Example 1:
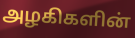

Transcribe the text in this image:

அழகிகளின்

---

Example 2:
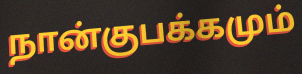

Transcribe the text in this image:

நான்குபக்கமும்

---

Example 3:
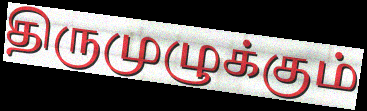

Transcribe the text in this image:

திருமுழுக்கும்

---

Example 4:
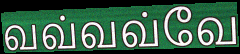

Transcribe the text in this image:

வவ்வவ்வே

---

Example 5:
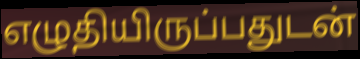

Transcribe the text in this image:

எழுதியிருப்பதுடன்